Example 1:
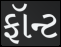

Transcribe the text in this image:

ફૉન્ટ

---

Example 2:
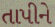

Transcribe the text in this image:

તાપીને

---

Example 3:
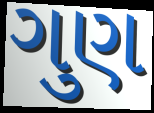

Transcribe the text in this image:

ગુણ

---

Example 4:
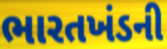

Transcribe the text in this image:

ભારતખંડની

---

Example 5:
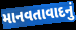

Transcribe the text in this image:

માનવતાવાદનું